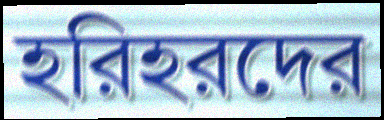
হরিহরদের